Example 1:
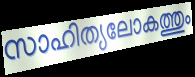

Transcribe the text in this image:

സാഹിത്യലോകത്തും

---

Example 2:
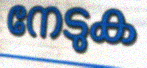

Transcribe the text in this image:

നേടുക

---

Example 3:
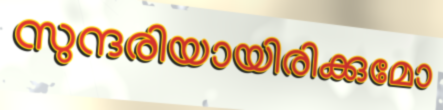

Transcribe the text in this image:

സുന്ദരിയായിരിക്കുമോ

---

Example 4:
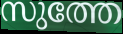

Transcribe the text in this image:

സുത്തേ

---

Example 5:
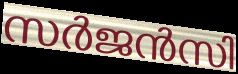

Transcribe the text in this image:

സർജൻസി